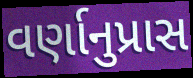
વર્ણાનુપ્રાસ